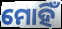
ମୋହିଁ